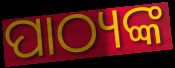
ପାଠ୍ୟଙ୍କ